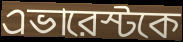
এভারেস্টকে